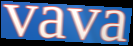
vava